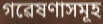
গৱেষণাসমূহ